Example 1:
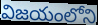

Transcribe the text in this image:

విజయంలోని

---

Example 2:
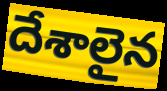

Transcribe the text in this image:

దేశాలైన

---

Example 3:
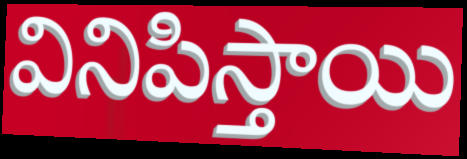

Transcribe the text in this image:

వినిపిస్తాయి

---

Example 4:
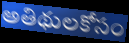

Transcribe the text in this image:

అతిథులకోసం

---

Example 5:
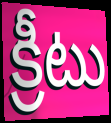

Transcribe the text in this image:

క్రీటు